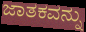
ಜಾತಕವನ್ನು